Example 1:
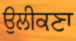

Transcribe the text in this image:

ਉਲੀਕਣਾ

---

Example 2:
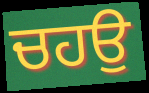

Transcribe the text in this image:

ਚਹਉ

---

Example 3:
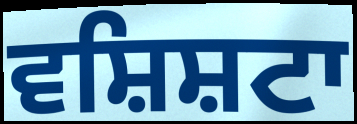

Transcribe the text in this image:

ਵਸ਼ਿਸ਼ਟਾ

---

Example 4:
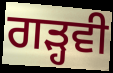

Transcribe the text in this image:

ਗੜ੍ਹਵੀ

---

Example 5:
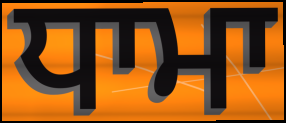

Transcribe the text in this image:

ਧਾਮਾ